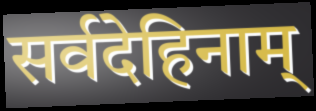
सर्वदेहिनाम्